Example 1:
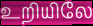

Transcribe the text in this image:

உறியிலே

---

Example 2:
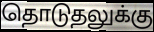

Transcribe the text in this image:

தொடுதலுக்கு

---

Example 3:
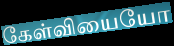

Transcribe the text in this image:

கேள்வியையோ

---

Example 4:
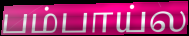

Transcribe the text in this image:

பம்பாய்ல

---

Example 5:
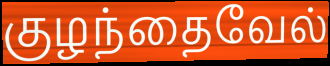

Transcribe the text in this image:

குழந்தைவேல்